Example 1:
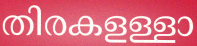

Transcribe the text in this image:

തിരകളള്ളാ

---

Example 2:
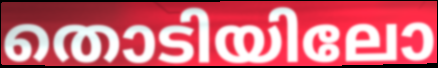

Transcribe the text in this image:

തൊടിയിലോ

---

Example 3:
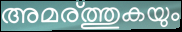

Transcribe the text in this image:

അമര്ത്തുകയും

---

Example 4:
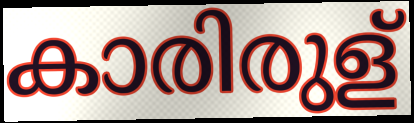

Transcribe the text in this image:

കാരിരുള്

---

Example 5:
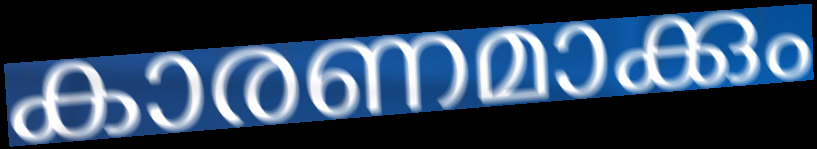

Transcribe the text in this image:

കാരണമാക്കും